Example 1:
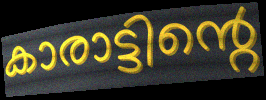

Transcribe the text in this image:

കാരാട്ടിന്റെ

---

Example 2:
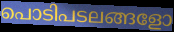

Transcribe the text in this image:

പൊടിപടലങ്ങളോ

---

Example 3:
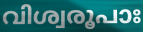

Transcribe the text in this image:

വിശ്വരൂപാഃ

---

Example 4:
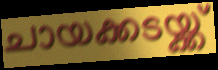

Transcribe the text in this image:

ചായക്കടയ്ക്ക്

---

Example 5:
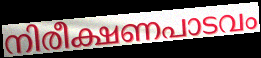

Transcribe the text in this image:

നിരീക്ഷണപാടവം